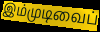
இம்முடிவைப்